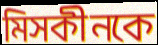
মিসকীনকে